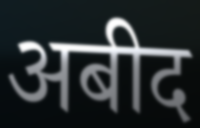
अबीद